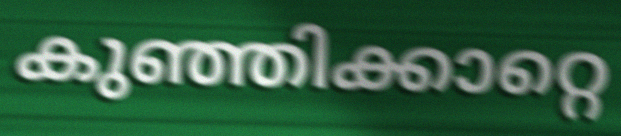
കുഞ്ഞിക്കാറ്റെ